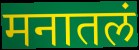
मनातलं